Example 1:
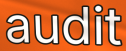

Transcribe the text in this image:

audit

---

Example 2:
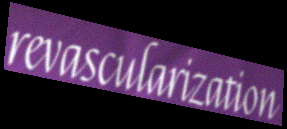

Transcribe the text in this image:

revascularization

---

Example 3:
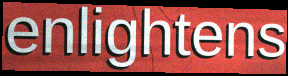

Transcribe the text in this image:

enlightens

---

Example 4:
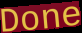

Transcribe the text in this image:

Done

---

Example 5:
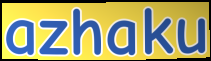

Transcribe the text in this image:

azhaku